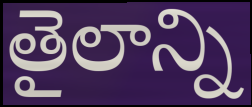
తైలాన్ని